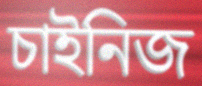
চাইনিজ